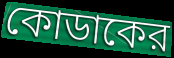
কোডাকের